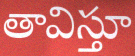
తావిస్తూ